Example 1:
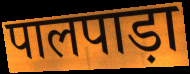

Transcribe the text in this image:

पालपाड़ा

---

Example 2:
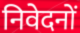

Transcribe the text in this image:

निवेदनों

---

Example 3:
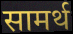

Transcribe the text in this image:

सामर्थ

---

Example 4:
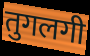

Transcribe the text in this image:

तुगलगी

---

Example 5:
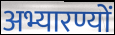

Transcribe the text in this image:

अभ्यारण्यों